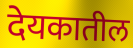
देयकातील